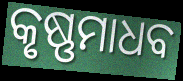
କୃଷ୍ଣମାଧବ